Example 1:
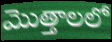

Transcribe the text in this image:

మొత్తాలలో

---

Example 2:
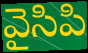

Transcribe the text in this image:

వైసిపి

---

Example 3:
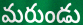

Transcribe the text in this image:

మరుండు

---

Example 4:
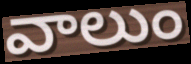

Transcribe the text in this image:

వాలుం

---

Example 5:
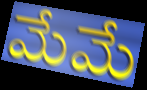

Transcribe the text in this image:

మేమే